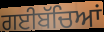
ਗਈਬੱਚਿਆਂ